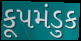
કૂપમંડુક